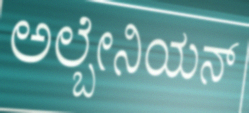
ಅಲ್ಬೇನಿಯನ್